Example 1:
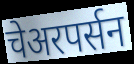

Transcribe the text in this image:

चेअरपर्सन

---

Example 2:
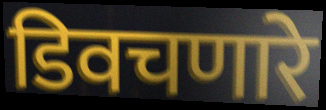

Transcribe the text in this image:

डिवचणारे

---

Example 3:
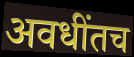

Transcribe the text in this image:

अवधींतच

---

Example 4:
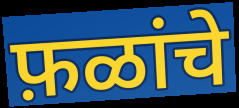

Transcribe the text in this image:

फ़ळांचे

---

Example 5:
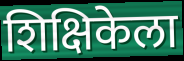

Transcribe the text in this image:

शिक्षिकेला